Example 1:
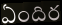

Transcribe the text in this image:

ఏందిర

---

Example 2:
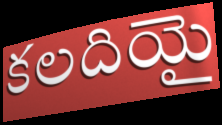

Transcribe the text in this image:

కలదియై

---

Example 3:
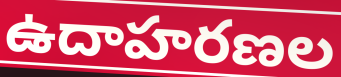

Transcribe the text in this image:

ఉదాహరణల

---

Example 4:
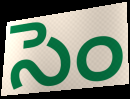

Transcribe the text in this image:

సెం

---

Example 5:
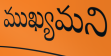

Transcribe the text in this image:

ముఖ్యమని